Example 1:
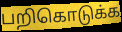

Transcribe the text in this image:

பறிகொடுக்க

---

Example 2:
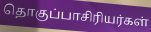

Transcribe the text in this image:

தொகுப்பாசிரியர்கள்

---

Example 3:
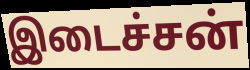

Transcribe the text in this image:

இடைச்சன்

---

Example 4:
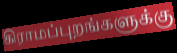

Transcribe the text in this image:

கிராமப்புறங்களுக்கு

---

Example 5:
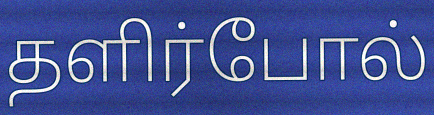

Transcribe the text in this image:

தளிர்போல்